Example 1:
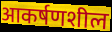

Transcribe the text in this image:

आकर्षणशील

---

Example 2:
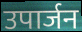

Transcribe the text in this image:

उपार्जन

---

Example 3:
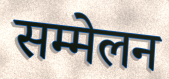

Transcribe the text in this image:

सम्मेलन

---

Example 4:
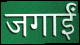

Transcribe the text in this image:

जगाईं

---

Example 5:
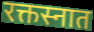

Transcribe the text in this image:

रक्तस्नात